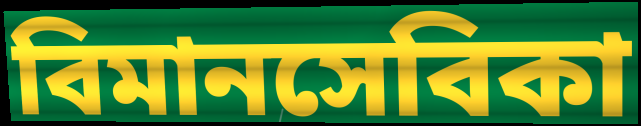
বিমানসেবিকা